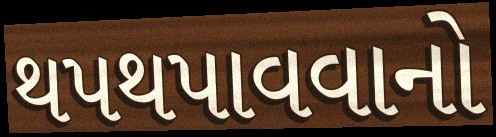
થપથપાવવાનો